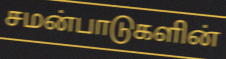
சமன்பாடுகளின்